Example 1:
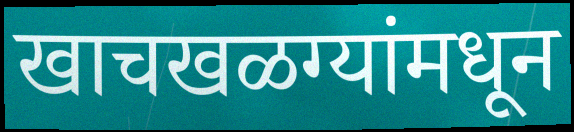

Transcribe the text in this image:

खाचखळग्यांमधून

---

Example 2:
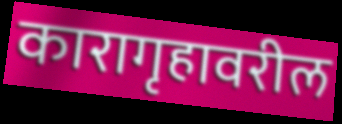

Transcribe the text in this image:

कारागृहावरील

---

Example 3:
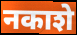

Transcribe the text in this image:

नकाशे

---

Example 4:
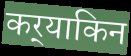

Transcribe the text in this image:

कर्याकिन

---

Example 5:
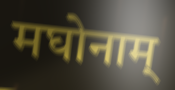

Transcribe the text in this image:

मघोनाम्